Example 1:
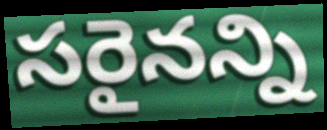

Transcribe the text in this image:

సరైనన్ని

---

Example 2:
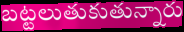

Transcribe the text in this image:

బట్టలుతుకుతున్నారు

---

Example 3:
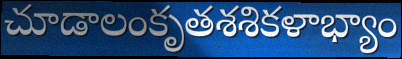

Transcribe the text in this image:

చూడాలంకృతశశికళాభ్యాం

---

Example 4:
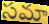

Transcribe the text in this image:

సమా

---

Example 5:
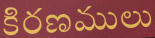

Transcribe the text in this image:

కిరణములు